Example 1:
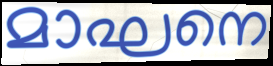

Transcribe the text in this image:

മാഘനെ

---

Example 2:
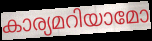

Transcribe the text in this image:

കാര്യമറിയാമോ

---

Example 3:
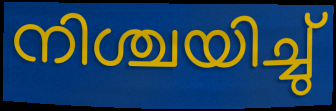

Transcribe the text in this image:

നിശ്ചയിച്ചു്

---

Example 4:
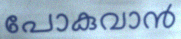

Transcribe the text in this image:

പോകുവാൻ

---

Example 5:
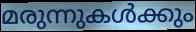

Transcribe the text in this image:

മരുന്നുകൾക്കും